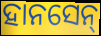
ହାନସେନ୍